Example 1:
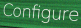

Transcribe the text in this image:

Configure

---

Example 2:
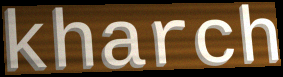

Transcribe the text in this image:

kharch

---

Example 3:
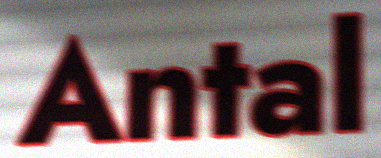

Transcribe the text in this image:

Antal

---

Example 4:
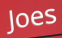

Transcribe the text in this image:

Joes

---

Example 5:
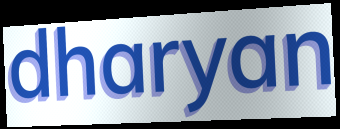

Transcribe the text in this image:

dharyan